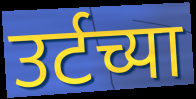
उर्टच्या